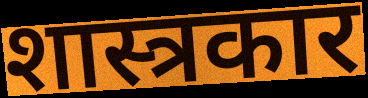
शास्त्रकार